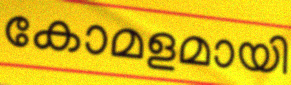
കോമളമായി